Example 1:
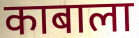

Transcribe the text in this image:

काबाला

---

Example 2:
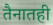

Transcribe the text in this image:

तैनातही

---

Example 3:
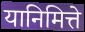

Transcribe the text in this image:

यानिमित्ते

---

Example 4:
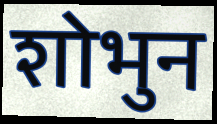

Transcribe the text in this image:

शोभुन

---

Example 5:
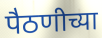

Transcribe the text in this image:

पैठणीच्या